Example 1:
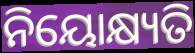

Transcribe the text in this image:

ନିୟୋକ୍ଷ୍ୟତି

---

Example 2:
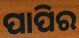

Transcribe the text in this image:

ପାପିର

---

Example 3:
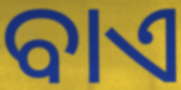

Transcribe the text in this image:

ବାଏ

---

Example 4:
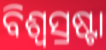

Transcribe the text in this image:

ବିଶ୍ୱସ୍ରଷ୍ଟା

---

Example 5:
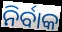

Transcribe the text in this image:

ନିର୍ବାକ